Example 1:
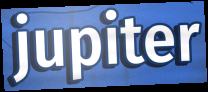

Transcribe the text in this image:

jupiter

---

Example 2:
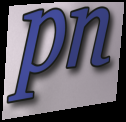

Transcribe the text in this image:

pn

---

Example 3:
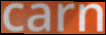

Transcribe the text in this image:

carn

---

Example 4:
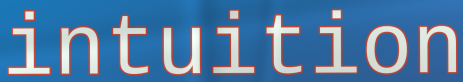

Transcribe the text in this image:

intuition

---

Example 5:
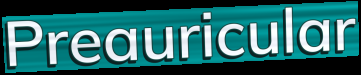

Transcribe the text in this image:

Preauricular